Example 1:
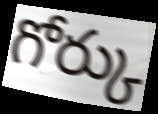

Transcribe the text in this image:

గోర్కు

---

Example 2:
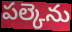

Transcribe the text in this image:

పల్కెను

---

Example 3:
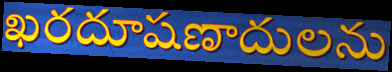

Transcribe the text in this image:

ఖరదూషణాదులను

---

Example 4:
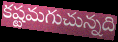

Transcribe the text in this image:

కష్టమగుచున్నది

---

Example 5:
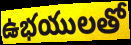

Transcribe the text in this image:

ఉభయులతో